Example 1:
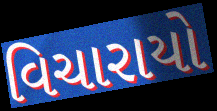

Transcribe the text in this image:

વિચારાયો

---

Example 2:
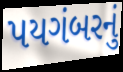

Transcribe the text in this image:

પયગંબરનું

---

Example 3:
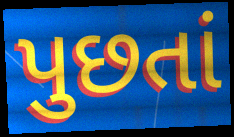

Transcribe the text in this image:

પુછતાં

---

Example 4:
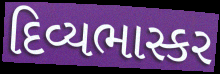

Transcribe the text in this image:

દિવ્યભાસ્કર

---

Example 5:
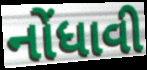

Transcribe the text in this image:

નોંધાવી